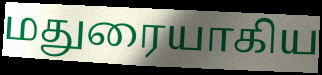
மதுரையாகிய